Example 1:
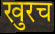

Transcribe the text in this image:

खुरच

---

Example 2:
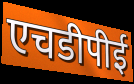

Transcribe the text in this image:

एचडीपीई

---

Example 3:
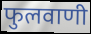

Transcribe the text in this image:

फुलवाणी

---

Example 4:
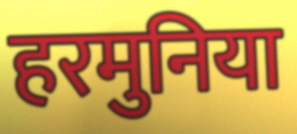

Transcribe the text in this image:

हरमुनिया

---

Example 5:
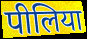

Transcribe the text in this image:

पीलिया